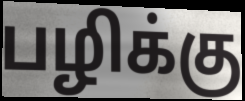
பழிக்கு